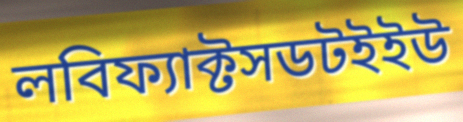
লবিফ্যাক্টসডটইইউ